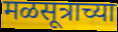
मळसूत्राच्या